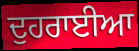
ਦੁਹਰਾਈਆ